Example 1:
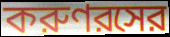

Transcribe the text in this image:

করুণরসের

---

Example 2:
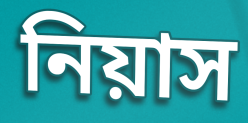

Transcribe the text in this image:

নিয়াস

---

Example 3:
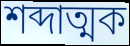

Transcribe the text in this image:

শব্দাত্মক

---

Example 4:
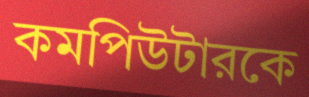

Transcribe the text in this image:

কমপিউটারকে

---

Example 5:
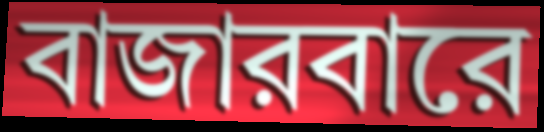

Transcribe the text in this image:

বাজারবারে